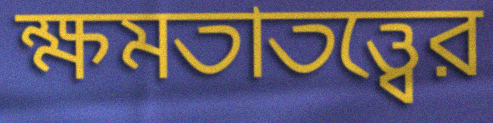
ক্ষমতাতত্ত্বের